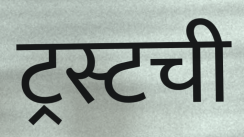
ट्रस्टची